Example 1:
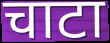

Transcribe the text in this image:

चाटा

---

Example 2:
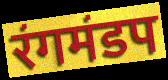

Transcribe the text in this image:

रंगमंडप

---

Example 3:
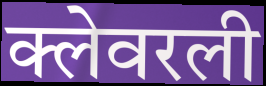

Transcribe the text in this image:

क्लेवरली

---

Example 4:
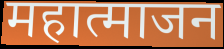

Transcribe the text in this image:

महात्माजन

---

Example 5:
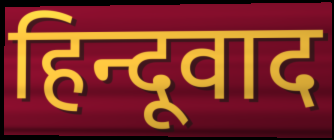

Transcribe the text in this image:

हिन्दूवाद